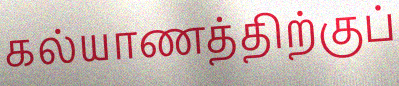
கல்யாணத்திற்குப்